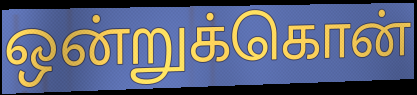
ஒன்றுக்கொன்